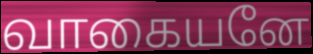
வாகையனே